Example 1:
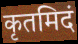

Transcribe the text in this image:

कृतमिदं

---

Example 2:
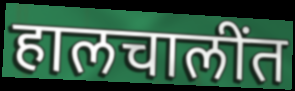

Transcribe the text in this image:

हालचालींत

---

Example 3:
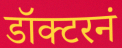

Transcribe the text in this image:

डॉक्टरनं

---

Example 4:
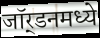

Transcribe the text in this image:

जॉर्डनमध्ये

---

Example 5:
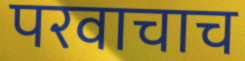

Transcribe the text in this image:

परवाचाच